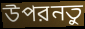
উপরনতু